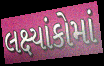
લક્ષ્યાંકોમાં